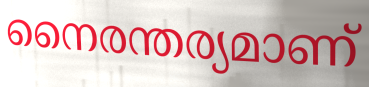
നൈരന്തര്യമാണ്